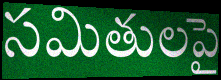
సమితులపై